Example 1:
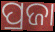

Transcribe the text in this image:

ପ୍ରଜା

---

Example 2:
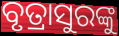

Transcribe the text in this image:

ବୃତ୍ରାସୁରଙ୍କୁ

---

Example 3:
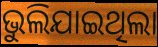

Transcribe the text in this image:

ଭୁଲିଯାଇଥିଲା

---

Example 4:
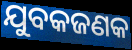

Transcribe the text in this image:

ଯୁବକଜଣକ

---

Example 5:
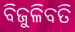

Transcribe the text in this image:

ବିଜୁଳିବତି